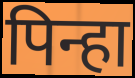
पिन्हा